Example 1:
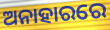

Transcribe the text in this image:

ଅନାହାରରେ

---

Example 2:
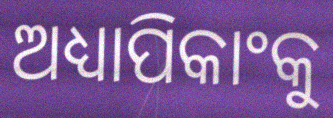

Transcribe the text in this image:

ଅଧ୍ୟାପିକାଂକୁ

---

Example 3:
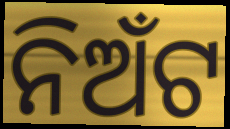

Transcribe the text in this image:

ନିଅଁଟ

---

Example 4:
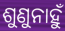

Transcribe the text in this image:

ଶୁଣୁନାହୁଁ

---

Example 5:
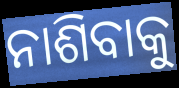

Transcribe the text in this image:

ନାଶିବାକୁ